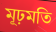
মূঢ়মতি